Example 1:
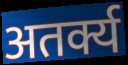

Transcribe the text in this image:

अतर्क्य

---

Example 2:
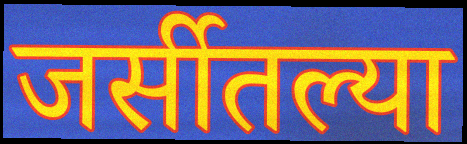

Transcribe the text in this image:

जर्सीतल्या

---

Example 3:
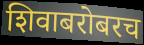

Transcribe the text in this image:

शिवाबरोबरच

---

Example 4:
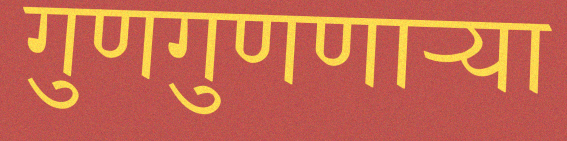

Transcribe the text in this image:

गुणगुणणाऱ्या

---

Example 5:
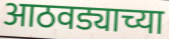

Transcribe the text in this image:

आठवड्याच्या